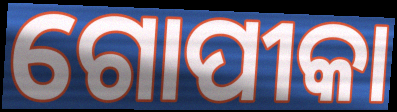
ଗୋପୀକା